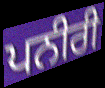
ਪਨੀਰੀ